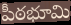
పీఠభూమి